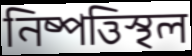
নিষ্পত্তিস্থল